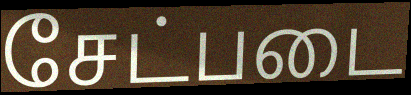
சேட்படை